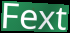
Fext